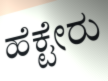
ಹೆಕ್ಟೇರು